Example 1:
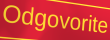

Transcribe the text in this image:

Odgovorite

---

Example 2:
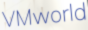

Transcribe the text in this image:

VMworld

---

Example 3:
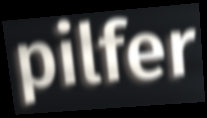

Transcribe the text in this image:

pilfer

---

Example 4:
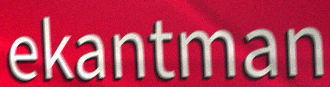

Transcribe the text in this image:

ekantman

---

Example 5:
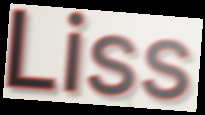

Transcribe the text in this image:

Liss